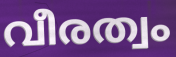
വീരത്വം